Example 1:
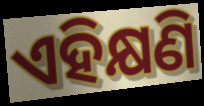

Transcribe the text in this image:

ଏହିକ୍ଷଣି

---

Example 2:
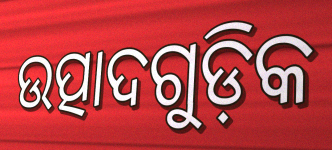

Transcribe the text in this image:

ଉତ୍ପାଦଗୁଡ଼ିକ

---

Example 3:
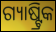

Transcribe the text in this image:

ଗ୍ୟାଷ୍ଟ୍ରିକ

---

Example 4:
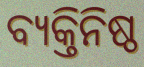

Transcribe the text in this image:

ବ୍ୟକ୍ତିନିଷ୍ଠ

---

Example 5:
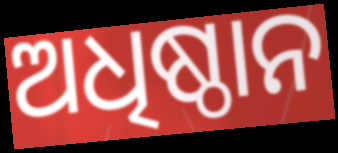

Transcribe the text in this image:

ଅଧିଷ୍ଠାନ